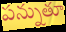
పన్నుతూ